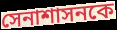
সেনাশাসনকে